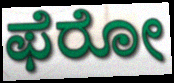
ಫೆರೋ